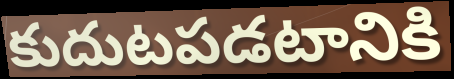
కుదుటపడటానికి